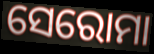
ସେରୋମା